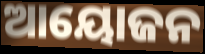
ଆୟୋଜନ